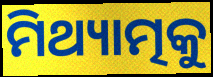
ମିଥ୍ୟାତ୍ମକୁ